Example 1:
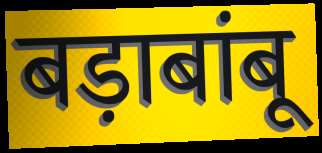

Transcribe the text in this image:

बड़ाबांबू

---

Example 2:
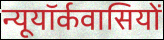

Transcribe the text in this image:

न्यूयॉर्कवासियों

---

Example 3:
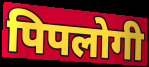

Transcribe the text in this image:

पिपलोगी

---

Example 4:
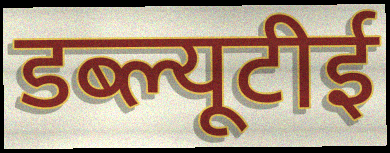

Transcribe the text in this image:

डब्ल्यूटीई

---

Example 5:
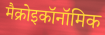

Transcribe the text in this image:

मैक्रोइकॉनॉमिक